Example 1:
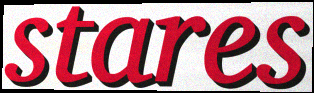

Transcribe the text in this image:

stares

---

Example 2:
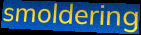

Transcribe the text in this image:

smoldering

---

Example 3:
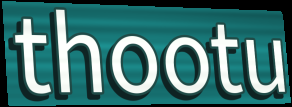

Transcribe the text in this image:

thootu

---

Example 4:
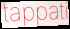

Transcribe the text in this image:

tappati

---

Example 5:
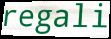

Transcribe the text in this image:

regali